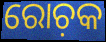
ରୋଚ଼କ